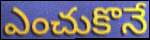
ఎంచుకొనే